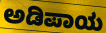
ಅಡಿಪಾಯ